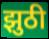
झुठी